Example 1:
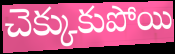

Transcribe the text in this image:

చెక్కుకుపోయి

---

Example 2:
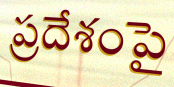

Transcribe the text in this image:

ప్రదేశంపై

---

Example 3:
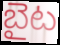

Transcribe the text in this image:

బైట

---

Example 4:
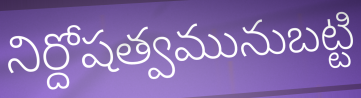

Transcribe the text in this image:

నిర్దోషత్వమునుబట్టి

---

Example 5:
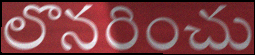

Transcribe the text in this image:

లొనరించు